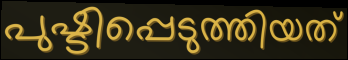
പുഷ്ടിപ്പെടുത്തിയത്